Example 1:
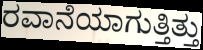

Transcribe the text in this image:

ರವಾನೆಯಾಗುತ್ತಿತ್ತು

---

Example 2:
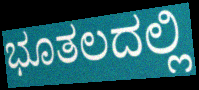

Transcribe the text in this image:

ಭೂತಲದಲ್ಲಿ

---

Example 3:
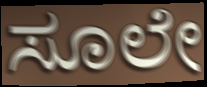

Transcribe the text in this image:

ಸೂಲೇ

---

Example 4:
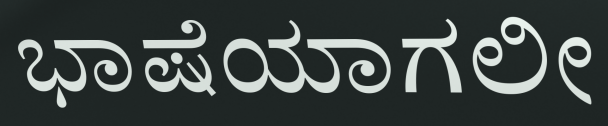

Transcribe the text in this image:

ಭಾಷೆಯಾಗಲೀ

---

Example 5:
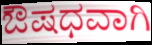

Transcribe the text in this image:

ಔಷಧವಾಗಿ